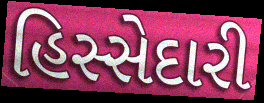
હિસ્સેદારી